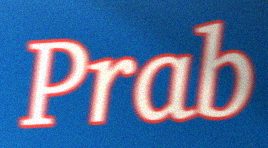
Prab